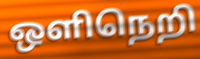
ஒளிநெறி